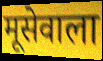
मूसेवाला